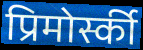
प्रिमोर्स्की